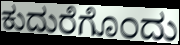
ಕುದುರೆಗೊಂದು